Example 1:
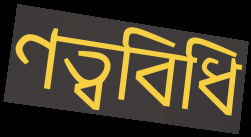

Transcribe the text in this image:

ণত্ববিধি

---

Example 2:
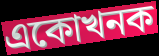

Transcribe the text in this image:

একোখনক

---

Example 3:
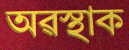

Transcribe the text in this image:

অৱস্থাক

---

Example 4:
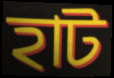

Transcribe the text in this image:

হাট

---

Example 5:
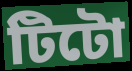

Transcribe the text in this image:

টিটো